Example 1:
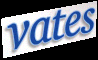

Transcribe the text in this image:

vates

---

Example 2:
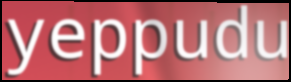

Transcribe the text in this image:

yeppudu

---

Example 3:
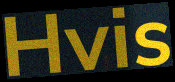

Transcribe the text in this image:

Hvis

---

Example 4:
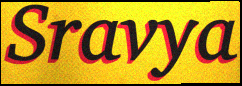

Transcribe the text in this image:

Sravya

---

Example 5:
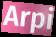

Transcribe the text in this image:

Arpi